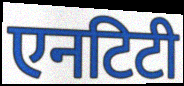
एनटिटी